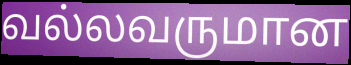
வல்லவருமான